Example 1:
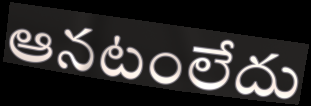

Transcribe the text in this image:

ఆనటంలేదు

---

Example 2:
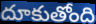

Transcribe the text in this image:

దూకుతోంది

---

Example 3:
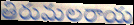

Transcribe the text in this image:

తిరుమలరాయ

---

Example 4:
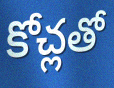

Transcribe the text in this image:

కోచ్లతో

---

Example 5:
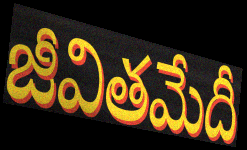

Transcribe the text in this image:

జీవితమేదీ